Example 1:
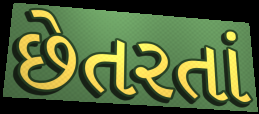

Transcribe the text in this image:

છેતરતાં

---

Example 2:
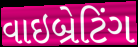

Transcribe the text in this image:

વાઇબ્રેટિંગ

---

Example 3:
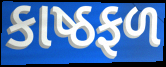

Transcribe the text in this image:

કાષ્ઠફળ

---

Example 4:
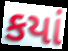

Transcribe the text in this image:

કયાં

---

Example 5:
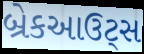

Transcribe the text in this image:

બ્રેકઆઉટ્સ